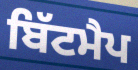
ਬਿੱਟਮੈਪ